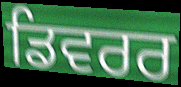
ਡਿਵਰਰ